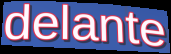
delante